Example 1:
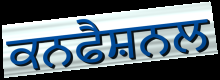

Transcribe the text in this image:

ਕਨਫੈਸ਼ਨਲ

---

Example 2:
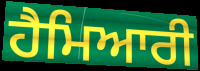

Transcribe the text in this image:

ਹੈਮਿਆਰੀ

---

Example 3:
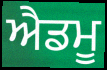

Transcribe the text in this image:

ਐਡਮੂ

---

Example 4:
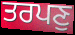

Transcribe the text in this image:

ਤਰਪਣੁ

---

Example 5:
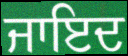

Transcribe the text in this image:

ਜਾਇਦ